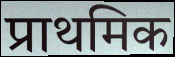
प्राथमिक